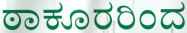
ಠಾಕೂರರಿಂದ